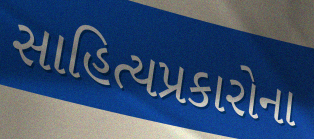
સાહિત્યપ્રકારોના